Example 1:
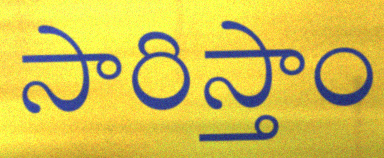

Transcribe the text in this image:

సారిస్తాం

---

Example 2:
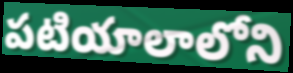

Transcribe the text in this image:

పటియాలాలోని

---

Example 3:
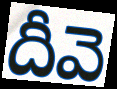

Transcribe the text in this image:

దీవె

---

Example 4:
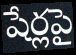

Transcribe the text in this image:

షేర్లపై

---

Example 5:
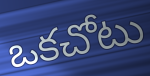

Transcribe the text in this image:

ఒకచోటు